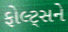
ફોલ્ટ્સને